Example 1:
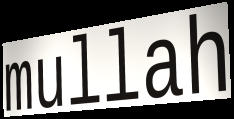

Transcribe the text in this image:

mullah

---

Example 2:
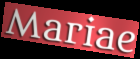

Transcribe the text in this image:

Mariae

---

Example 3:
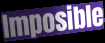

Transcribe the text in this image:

Imposible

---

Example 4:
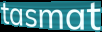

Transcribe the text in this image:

tasmat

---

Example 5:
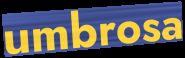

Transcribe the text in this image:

umbrosa